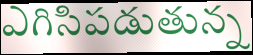
ఎగిసిపడుతున్న